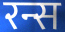
रन्स